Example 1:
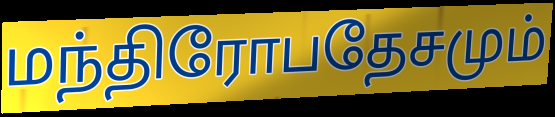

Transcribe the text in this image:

மந்திரோபதேசமும்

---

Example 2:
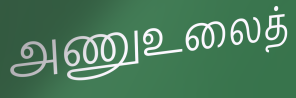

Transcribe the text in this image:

அணுஉலைத்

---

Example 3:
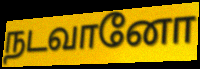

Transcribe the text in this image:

நடவானோ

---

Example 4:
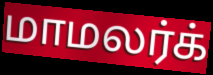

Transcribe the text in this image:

மாமலர்க்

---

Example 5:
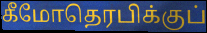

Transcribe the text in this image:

கீமோதெரபிக்குப்